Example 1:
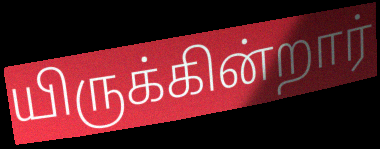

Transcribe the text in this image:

யிருக்கின்றார்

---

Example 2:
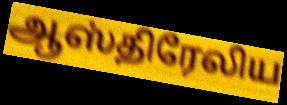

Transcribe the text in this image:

ஆஸ்திரேலிய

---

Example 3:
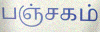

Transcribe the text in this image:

பஞ்சகம்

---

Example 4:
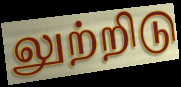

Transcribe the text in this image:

லுற்றிடு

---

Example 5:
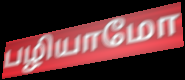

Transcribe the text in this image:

பழியாமோ